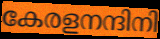
കേരളനന്ദിനി